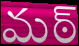
మఠ్